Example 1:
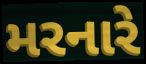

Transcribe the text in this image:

મરનારે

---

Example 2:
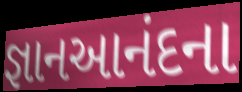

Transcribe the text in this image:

જ્ઞાનઆનંદના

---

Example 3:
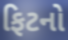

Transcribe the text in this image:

ફિટનો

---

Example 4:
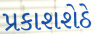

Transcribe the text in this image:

પ્રકાશશેઠે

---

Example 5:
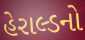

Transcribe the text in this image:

હેરાલ્ડનો